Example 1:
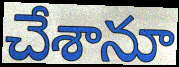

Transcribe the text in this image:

చేశానూ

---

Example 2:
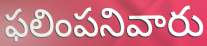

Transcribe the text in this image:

ఫలింపనివారు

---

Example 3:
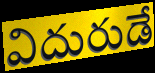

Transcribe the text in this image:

విదురుడే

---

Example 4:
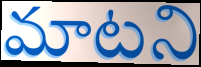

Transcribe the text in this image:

మాటని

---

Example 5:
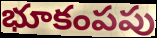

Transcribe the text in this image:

భూకంపపు